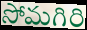
సోమగిరి